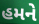
હમને